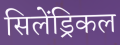
सिलेंड्रिकल